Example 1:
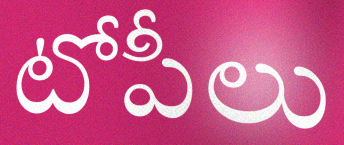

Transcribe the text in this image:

టోపీలు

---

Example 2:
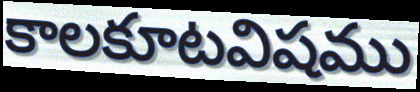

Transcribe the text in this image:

కాలకూటవిషము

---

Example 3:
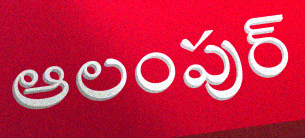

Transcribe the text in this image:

ఆలంపుర్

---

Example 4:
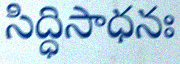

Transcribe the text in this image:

సిద్ధిసాధనః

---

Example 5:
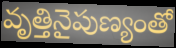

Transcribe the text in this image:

వృత్తినైపుణ్యంతో